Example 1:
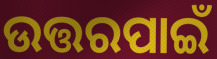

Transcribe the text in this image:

ଉତ୍ତରପାଇଁ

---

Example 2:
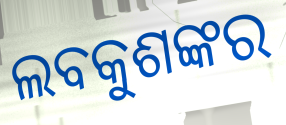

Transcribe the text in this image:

ଲବକୁଶଙ୍କର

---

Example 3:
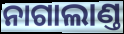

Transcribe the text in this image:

ନାଗାଲାଣ୍ତ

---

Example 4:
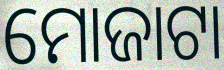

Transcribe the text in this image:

ମୋଜାଟା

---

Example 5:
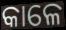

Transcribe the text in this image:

କାଳେ